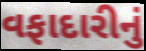
વફાદારીનું